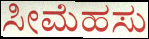
ಸೀಮೆಹಸು